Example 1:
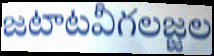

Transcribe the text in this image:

జటాటవీగలజ్జల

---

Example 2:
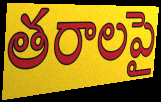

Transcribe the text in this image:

తరాలపై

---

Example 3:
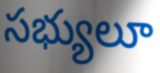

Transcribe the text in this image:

సభ్యులూ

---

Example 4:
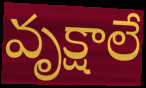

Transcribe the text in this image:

వృక్షాలే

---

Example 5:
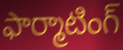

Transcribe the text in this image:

ఫార్మాటింగ్